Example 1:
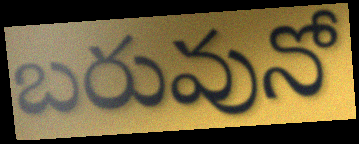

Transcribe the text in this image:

బరువునో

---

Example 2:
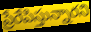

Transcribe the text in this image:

ప్రేరేపిస్తున్నారని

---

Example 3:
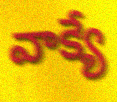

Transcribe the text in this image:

వాక్యే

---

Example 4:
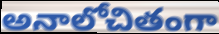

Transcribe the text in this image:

అనాలోచితంగా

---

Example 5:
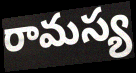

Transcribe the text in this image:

రామస్య